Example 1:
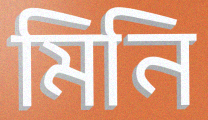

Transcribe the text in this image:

মিনি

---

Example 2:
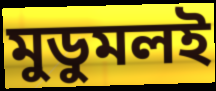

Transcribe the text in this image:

মুডুমলই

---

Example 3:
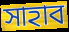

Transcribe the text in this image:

সাহাব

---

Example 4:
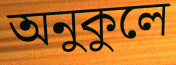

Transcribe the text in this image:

অনুকুলে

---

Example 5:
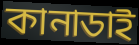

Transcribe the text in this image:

কানাডাই